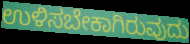
ಉಳಿಸಬೇಕಾಗಿರುವುದು